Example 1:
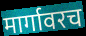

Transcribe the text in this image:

मार्गावरच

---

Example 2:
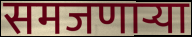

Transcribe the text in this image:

समजणाऱ्या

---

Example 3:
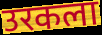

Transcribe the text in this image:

उरकला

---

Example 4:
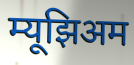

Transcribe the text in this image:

म्यूझिअम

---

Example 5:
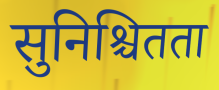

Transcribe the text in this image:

सुनिश्चितता